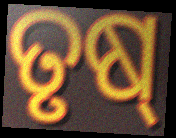
ତୃଷ୍